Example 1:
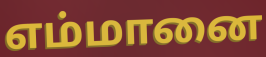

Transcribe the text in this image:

எம்மானை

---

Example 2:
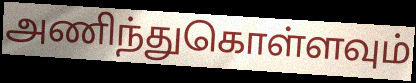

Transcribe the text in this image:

அணிந்துகொள்ளவும்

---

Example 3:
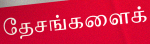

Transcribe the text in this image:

தேசங்களைக்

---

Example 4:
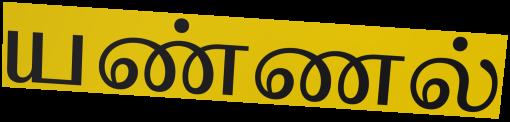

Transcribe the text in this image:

யண்ணல்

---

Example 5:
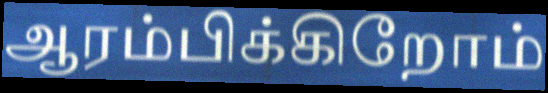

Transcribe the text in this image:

ஆரம்பிக்கிறோம்